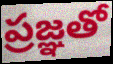
ప్రజ్ఞతో